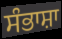
ਸੰਭਾਸ਼ਾ